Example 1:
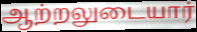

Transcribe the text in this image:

ஆற்றலுடையார்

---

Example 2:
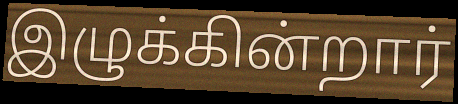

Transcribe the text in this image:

இழுக்கின்றார்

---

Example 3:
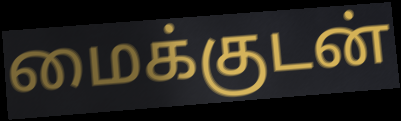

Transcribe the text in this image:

மைக்குடன்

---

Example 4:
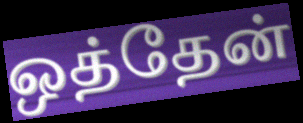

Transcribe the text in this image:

ஒத்தேன்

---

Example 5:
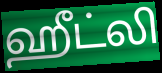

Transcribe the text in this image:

ஹீட்லி